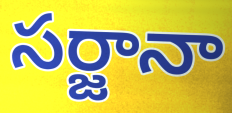
సర్జానా